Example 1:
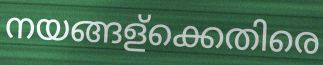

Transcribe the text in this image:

നയങ്ങള്ക്കെതിരെ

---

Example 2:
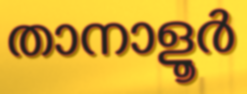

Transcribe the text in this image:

താനാളൂർ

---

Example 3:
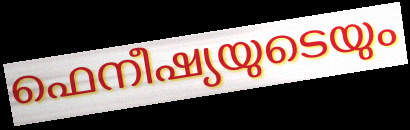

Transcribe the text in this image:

ഫെനീഷ്യയുടെയും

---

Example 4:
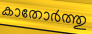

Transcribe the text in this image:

കാതോർത്തു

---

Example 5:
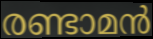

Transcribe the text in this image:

രണ്ടാമൻ